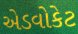
એડવોકેટ